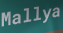
Mallya